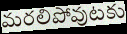
మరలిపోవుటకు